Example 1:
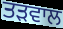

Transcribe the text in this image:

ਤੜਵਾਲ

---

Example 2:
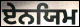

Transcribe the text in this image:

ਏਨਯਿਮ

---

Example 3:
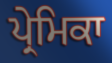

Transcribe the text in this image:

ਪ੍ਰੇਮਿਕਾ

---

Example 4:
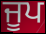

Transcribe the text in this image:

ਜੂਪ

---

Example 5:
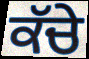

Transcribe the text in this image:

ਕੱਚੇ